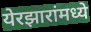
येरझारांमध्ये